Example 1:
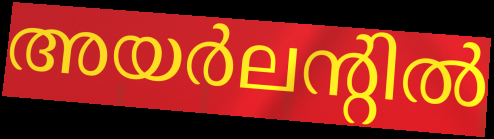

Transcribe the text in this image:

അയർലന്റിൽ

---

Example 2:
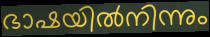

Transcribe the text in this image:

ഭാഷയിൽനിന്നും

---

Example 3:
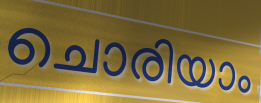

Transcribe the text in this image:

ചൊരിയാം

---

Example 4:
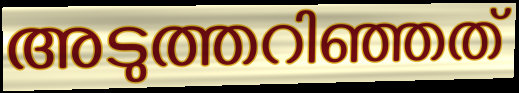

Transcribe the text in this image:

അടുത്തറിഞ്ഞത്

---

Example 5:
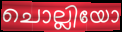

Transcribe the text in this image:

ചൊല്ലിയോ